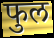
फुल